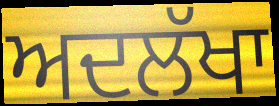
ਅਦਲੱਖਾ